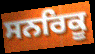
ਸਨਰਿਕੂ